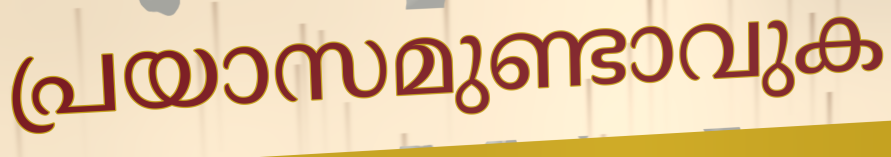
പ്രയാസമുണ്ടാവുക